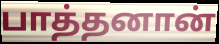
பாத்தனான்